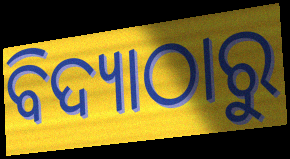
ବିଦ୍ୟାଠାରୁ